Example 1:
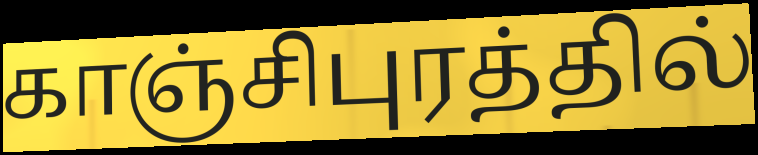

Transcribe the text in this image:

காஞ்சிபுரத்தில்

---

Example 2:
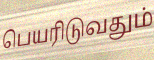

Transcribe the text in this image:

பெயரிடுவதும்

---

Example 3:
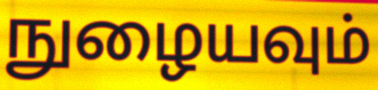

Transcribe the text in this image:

நுழையவும்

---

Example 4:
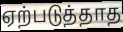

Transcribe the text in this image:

ஏற்படுத்தாத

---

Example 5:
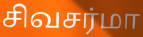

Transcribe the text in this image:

சிவசர்மா